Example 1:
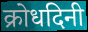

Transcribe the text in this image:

क्रोधदिनी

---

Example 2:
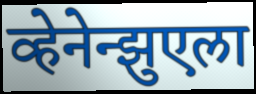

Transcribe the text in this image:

व्हेनेन्झुएला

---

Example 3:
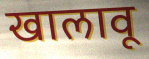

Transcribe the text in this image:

खालावू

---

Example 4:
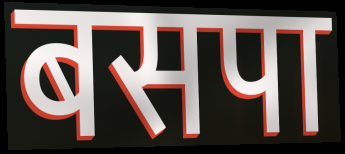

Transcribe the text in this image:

बसपा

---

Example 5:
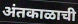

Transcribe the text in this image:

अंतकाळाची